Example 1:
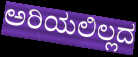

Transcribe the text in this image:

ಅರಿಯಲಿಲ್ಲದ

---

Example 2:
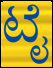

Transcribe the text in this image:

ಟೈ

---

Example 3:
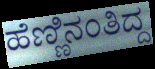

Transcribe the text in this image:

ಹೆಣ್ಣಿನಂತಿದ್ದ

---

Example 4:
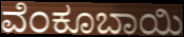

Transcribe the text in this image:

ವೆಂಕೂಬಾಯಿ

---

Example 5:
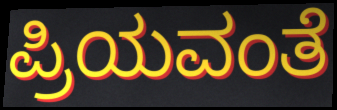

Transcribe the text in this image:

ಪ್ರಿಯವಂತೆ